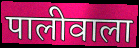
पालीवाला